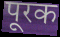
पूरक